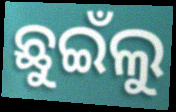
ଛୁଇଁଲୁ